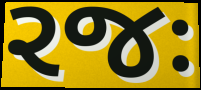
રજઃ